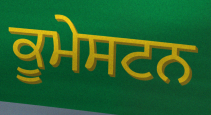
ਕੂਮੇਸਟਨ